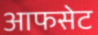
आफसेट